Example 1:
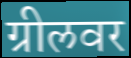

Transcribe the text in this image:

ग्रीलवर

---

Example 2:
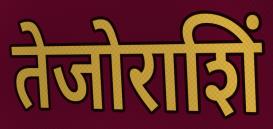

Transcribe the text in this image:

तेजोराशिं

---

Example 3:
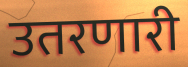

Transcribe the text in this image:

उतरणारी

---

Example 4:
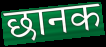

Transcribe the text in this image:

छानक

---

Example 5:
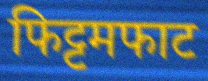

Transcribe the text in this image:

फिट्टमफाट